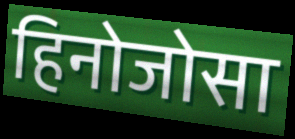
हिनोजोसा